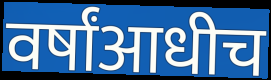
वर्षांआधीच